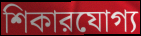
শিকারযোগ্য